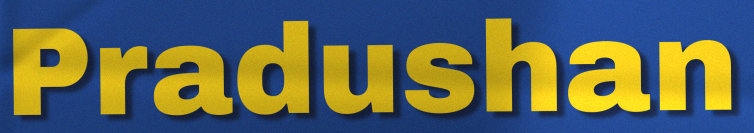
Pradushan